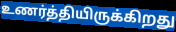
உணர்த்தியிருக்கிறது